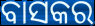
ବାସକର